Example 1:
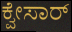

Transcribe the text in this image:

ಕ್ವೇಸಾರ್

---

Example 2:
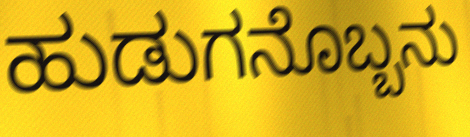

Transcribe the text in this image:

ಹುಡುಗನೊಬ್ಬನು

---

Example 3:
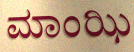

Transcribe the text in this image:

ಮಾಂಝಿ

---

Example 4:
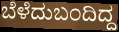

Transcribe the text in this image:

ಬೆಳೆದುಬಂದಿದ್ದ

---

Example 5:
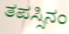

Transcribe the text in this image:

ತಪಸ್ಸಿನಂ